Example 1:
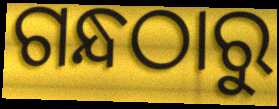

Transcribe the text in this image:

ଗନ୍ଧଠାରୁ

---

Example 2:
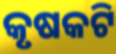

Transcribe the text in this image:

କୃଷକଟି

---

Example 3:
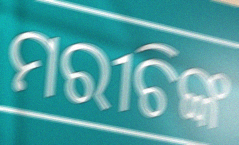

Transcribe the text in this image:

ମରୀଚିଙ୍କ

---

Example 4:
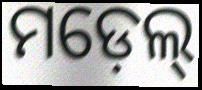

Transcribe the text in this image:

ମଡ଼େଲ୍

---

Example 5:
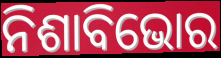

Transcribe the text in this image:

ନିଶାବିଭୋର